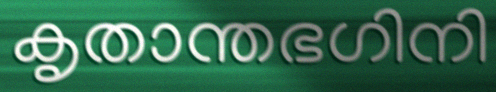
കൃതാന്തഭഗിനി